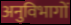
अनुविभागों